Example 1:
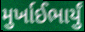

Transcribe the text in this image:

મુર્ખાઈભાર્યું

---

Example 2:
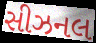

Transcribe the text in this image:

સીઝનલ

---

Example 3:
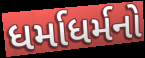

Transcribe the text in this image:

ધર્માધર્મનો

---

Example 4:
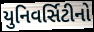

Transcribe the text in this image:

યુનિવર્સિટીનો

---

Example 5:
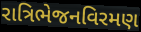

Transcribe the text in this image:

રાત્રિભેજનવિરમણ